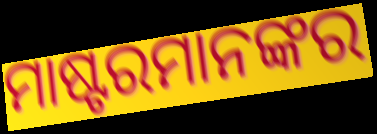
ମାଷ୍ଟରମାନଙ୍କର